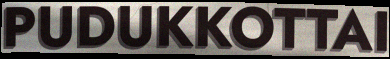
PUDUKKOTTAI